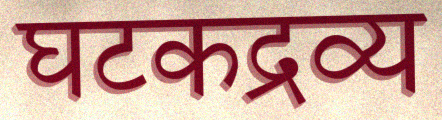
घटकद्रव्य